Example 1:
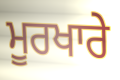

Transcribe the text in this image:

ਮੂਰਖਾਰੇ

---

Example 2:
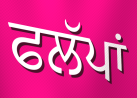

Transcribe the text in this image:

ਫਲੱਪਾਂ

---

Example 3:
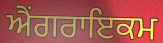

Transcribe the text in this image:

ਐਂਗਰਾਇਕਮ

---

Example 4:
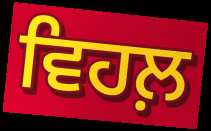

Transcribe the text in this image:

ਵਿਹਲ਼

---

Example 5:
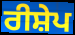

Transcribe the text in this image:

ਰੀਸ਼ੇਪ